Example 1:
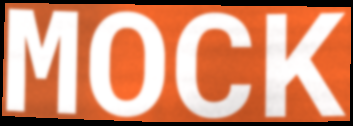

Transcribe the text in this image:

MOCK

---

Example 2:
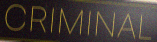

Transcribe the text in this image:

CRIMINAL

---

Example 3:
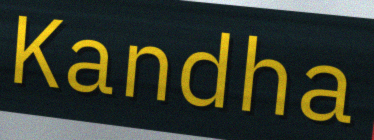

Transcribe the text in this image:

Kandha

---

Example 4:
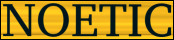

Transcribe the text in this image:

NOETIC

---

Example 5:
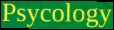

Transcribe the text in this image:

Psycology